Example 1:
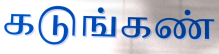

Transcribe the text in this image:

கடுங்கண்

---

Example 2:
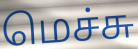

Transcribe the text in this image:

மெச்சு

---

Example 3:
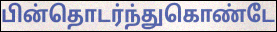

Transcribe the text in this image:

பின்தொடர்ந்துகொண்டே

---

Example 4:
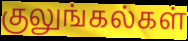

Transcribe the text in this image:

குலுங்கல்கள்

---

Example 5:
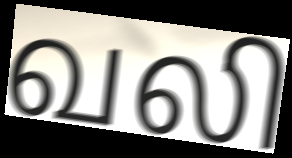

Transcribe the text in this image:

வலி